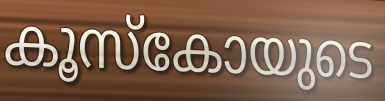
കൂസ്കോയുടെ